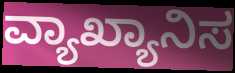
ವ್ಯಾಖ್ಯಾನಿಸ